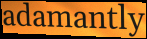
adamantly